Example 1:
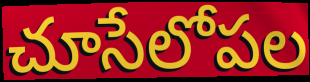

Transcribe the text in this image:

చూసేలోపల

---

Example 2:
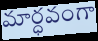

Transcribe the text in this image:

మార్ధవంగా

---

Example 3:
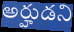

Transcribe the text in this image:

అర్హుడని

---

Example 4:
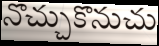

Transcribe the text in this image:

నొచ్చుకొనుచు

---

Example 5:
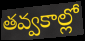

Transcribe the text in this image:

తవ్వకాల్లో